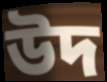
উদ